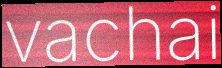
vachai